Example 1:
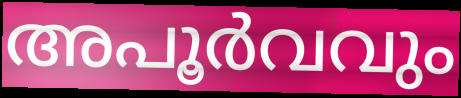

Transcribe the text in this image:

അപൂർവവും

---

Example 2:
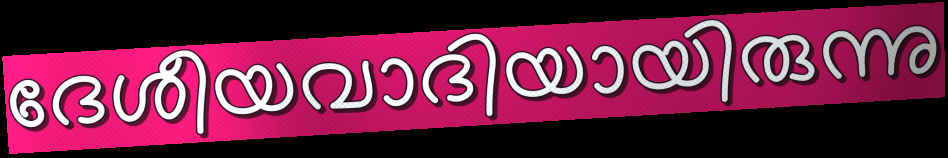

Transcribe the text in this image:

ദേശീയവാദിയായിരുന്നു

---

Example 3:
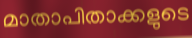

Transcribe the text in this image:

മാതാപിതാക്കളുടെ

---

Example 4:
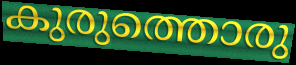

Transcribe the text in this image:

കുരുത്തൊരു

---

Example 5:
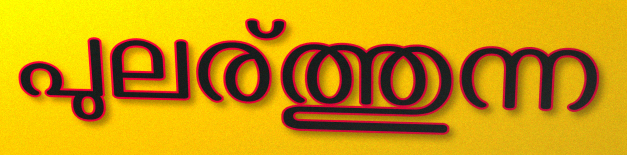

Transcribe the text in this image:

പുലര്ത്തുന്ന